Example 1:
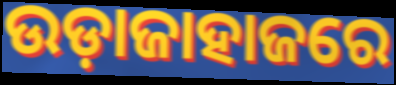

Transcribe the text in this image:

ଉଡ଼ାଜାହାଜରେ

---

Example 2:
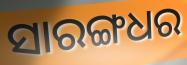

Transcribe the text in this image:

ସାରଙ୍ଗଧର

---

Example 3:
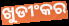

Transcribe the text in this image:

ଖୁଡୀଂକର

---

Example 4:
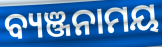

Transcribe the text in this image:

ବ୍ୟଞ୍ଜନାମୟ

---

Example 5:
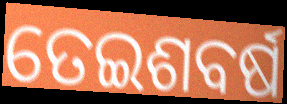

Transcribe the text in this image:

ତେଇଶବର୍ଷ